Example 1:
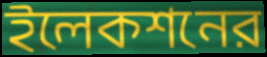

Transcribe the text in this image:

ইলেকশনের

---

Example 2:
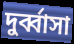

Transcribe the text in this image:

দুর্ব্বাসা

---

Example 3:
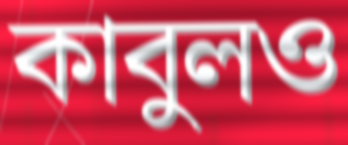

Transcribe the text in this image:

কাবুলও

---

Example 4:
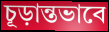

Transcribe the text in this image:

চূড়ান্তভাবে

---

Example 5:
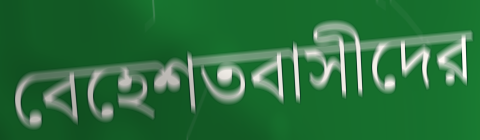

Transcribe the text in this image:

বেহেশতবাসীদের